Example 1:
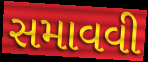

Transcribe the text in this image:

સમાવવી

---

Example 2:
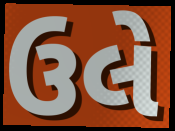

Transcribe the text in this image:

ઉલે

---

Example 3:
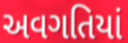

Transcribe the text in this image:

અવગતિયાં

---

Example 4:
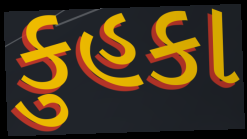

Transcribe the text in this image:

કુહકા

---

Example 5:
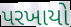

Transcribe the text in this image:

પરખાયો